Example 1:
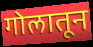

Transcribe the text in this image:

गोलातून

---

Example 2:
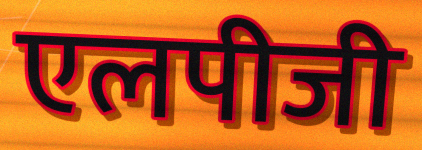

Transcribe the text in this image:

एलपीजी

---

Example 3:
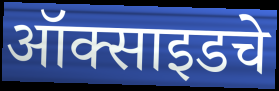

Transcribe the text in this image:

ऑक्साइडचे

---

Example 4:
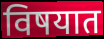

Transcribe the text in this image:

विषयात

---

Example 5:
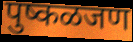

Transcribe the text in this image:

पुष्कळजण